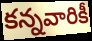
కన్నవారికీ